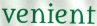
venient